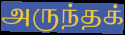
அருந்தக்